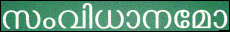
സംവിധാനമോ